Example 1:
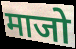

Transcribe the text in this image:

माजो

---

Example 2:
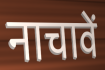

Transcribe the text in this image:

नाचावें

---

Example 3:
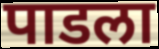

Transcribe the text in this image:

पाडला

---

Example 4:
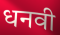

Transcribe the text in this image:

धनवी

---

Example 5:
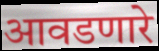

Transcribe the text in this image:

आवडणारे